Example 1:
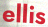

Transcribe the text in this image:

ellis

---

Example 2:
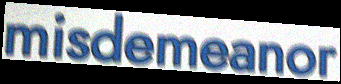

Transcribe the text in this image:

misdemeanor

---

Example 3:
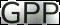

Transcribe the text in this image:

GPP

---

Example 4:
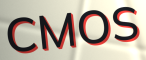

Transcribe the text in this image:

CMOS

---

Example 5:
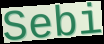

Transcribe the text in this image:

Sebi